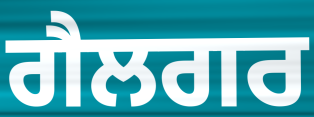
ਗੈਲਗਰ